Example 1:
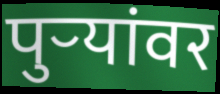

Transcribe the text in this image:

पुऱ्यांवर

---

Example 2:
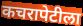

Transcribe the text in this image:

कचरापेटीला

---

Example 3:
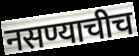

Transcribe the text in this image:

नसण्याचीच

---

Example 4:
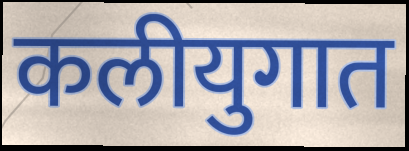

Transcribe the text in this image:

कलीयुगात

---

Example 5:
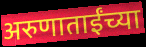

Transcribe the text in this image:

अरुणाताईंच्या